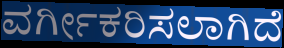
ವರ್ಗೀಕರಿಸಲಾಗಿದೆ